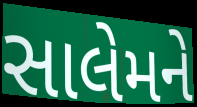
સાલેમને